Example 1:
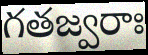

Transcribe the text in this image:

గతజ్వరాః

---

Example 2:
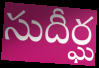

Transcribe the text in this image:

సుదీర్ఘ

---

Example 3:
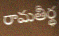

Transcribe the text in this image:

రామతీర్థ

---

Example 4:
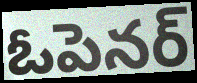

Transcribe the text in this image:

ఓపెనర్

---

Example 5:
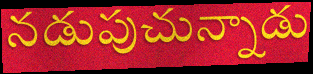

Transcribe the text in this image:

నడుపుచున్నాడు